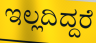
ಇಲ್ಲದಿದ್ದರೆ